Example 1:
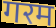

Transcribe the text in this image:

गरम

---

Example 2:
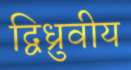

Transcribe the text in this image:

द्विध्रुवीय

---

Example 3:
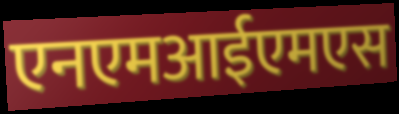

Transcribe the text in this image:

एनएमआईएमएस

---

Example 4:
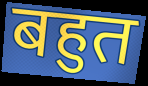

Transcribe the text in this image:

बहुत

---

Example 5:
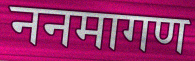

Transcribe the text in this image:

ननमागण